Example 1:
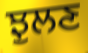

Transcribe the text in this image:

ਝੁਲਣ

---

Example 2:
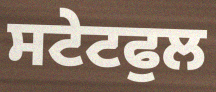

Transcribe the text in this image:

ਸਟੇਟਫੁਲ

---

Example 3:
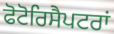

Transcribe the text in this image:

ਫੋਟੋਰਿਸੈਪਟਰਾਂ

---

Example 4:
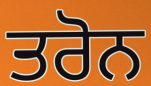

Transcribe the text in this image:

ਤਰੋਨ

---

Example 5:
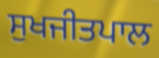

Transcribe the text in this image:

ਸੁਖਜੀਤਪਾਲ